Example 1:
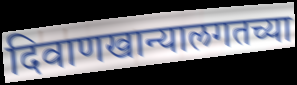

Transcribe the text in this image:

दिवाणखान्यालगतच्या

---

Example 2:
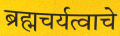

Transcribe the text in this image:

ब्रह्मचर्यत्वाचे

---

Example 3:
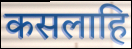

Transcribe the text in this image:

कसलाहि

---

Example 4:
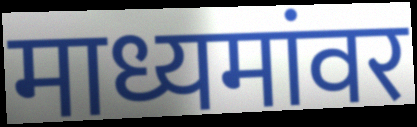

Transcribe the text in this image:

माध्यमांवर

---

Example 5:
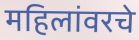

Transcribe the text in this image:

महिलांवरचे